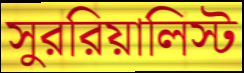
সুররিয়ালিস্ট